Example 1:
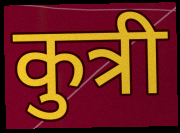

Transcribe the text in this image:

कुत्री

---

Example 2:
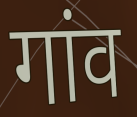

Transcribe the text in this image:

गांव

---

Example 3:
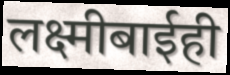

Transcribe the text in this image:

लक्ष्मीबाईही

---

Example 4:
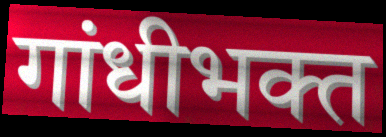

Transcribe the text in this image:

गांधीभक्त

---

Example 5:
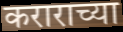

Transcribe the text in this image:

कराराच्या